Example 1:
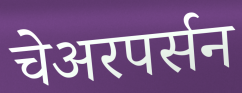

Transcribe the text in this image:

चेअरपर्सन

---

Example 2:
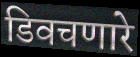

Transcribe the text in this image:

डिवचणारे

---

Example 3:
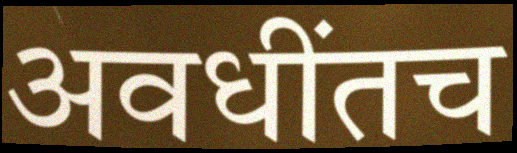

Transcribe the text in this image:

अवधींतच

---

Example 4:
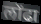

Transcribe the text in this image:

लोंढा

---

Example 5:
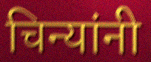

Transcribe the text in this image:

चिन्यांनी